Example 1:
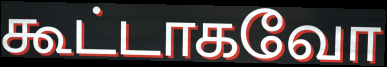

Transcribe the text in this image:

கூட்டாகவோ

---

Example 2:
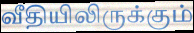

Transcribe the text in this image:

வீதியிலிருக்கும்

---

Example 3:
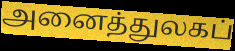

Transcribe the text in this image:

அனைத்துலகப்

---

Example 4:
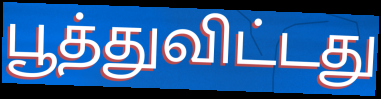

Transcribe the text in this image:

பூத்துவிட்டது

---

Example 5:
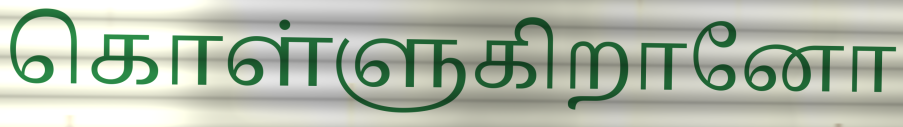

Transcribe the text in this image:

கொள்ளுகிறானோ